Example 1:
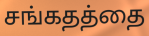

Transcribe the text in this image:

சங்கதத்தை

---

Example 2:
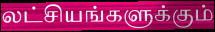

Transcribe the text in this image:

லட்சியங்களுக்கும்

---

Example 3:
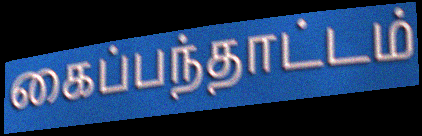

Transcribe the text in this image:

கைப்பந்தாட்டம்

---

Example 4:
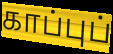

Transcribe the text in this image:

காப்புப்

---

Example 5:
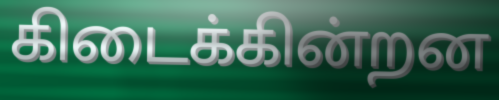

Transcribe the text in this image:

கிடைக்கின்றன